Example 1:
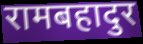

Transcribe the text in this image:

रामबहादुर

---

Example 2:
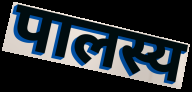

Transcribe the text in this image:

पालस्य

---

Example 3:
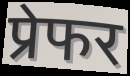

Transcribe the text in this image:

प्रेफर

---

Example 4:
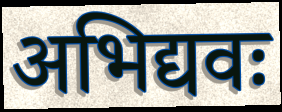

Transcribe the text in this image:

अभिद्यवः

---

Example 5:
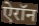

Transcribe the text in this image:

ऐरॉन